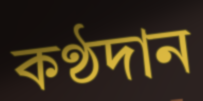
কণ্ঠদান